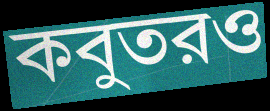
কবুতরও